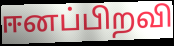
ஈனப்பிறவி